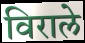
विराले